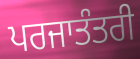
ਪਰਜਾਤੰਤਰੀ